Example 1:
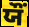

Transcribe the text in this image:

ਯੌਂ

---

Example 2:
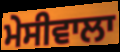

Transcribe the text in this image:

ਮੇਸੀਵਾਲਾ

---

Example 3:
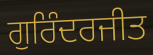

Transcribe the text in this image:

ਗੁਰਿੰਦਰਜੀਤ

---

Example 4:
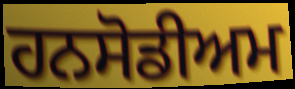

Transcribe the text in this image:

ਹਨਸੋਡੀਅਮ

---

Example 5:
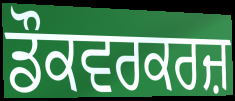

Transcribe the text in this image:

ਡੌਕਵਰਕਰਜ਼